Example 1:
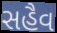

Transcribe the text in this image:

સહૈવ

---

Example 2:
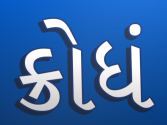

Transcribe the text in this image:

ક્રોધં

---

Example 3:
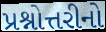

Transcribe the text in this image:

પ્રશ્નોત્તરીનો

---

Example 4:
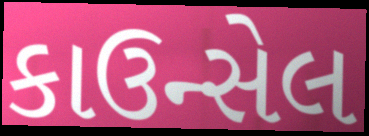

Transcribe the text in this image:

કાઉન્સેલ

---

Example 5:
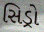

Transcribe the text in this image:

સિડ્રો